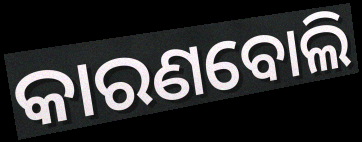
କାରଣବୋଲି